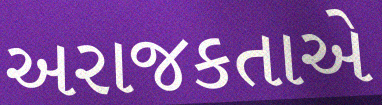
અરાજકતાએ